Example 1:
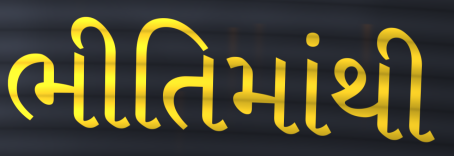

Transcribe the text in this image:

ભીતિમાંથી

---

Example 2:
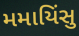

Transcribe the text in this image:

મમાયિંસુ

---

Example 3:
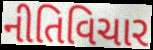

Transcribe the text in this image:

નીતિવિચાર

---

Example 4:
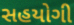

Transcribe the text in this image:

સહયોગી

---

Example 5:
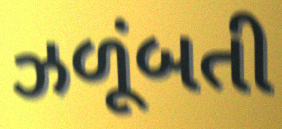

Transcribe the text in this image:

ઝળૂંબતી